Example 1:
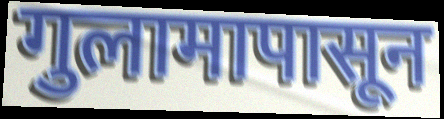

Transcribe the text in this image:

गुलामापासून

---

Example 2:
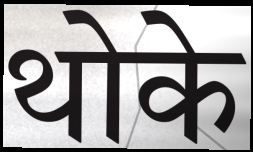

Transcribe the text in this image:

थोके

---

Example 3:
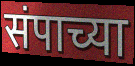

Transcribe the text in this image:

संपाच्या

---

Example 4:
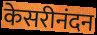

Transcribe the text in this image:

केसरीनंदन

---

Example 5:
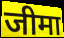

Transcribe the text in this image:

जीमा